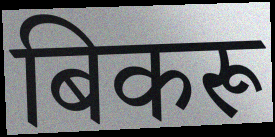
बिकरू